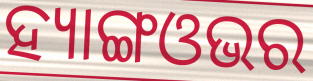
ହ୍ୟାଙ୍ଗଓଭର